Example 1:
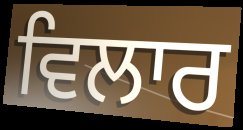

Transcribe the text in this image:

ਵਿਲਾਰ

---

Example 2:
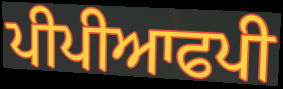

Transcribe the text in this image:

ਪੀਪੀਆਫਪੀ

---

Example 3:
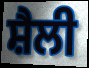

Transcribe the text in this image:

ਸ਼ੈਲੀ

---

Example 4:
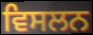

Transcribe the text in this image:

ਵਿਸਲਨ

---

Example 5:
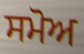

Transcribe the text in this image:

ਸਮੋਅ